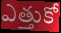
ఎత్తుకో